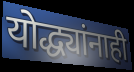
योद्ध्यांनाही